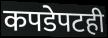
कपडेपटही